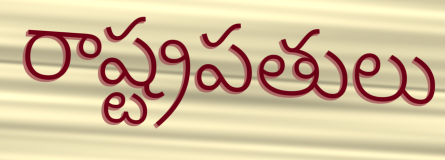
రాష్ట్రపతులు